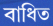
বাধিত